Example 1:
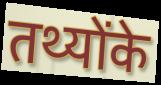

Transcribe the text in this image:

तथ्योंके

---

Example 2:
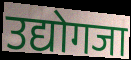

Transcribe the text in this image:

उद्योगजा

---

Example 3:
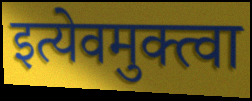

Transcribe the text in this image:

इत्येवमुक्त्वा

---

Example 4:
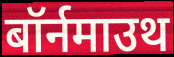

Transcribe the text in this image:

बॉर्नमाउथ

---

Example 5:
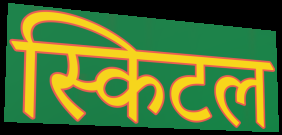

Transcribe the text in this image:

स्किटल